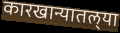
कारखान्यातल्या